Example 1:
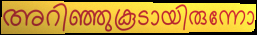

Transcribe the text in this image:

അറിഞ്ഞുകൂടായിരുന്നോ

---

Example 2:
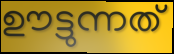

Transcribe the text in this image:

ഊട്ടുന്നത്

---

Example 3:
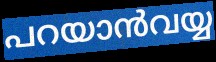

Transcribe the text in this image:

പറയാൻവയ്യ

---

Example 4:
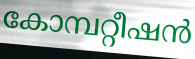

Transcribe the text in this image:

കോമ്പറ്റീഷൻ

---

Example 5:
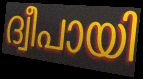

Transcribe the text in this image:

ദ്വീപായി